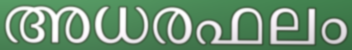
അധരഫലം